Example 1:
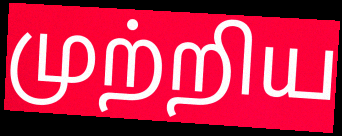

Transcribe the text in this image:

முற்றிய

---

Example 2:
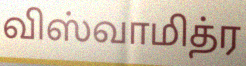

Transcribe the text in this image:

விஸ்வாமித்ர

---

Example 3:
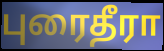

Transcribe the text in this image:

புரைதீரா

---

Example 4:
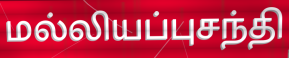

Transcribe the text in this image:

மல்லியப்புசந்தி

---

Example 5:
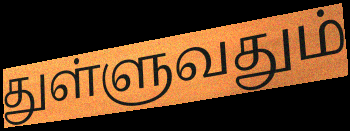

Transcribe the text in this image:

துள்ளுவதும்